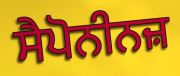
ਸੈਪੋਨੀਨਜ਼